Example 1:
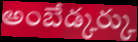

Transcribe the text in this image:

అంబేడ్కర్కు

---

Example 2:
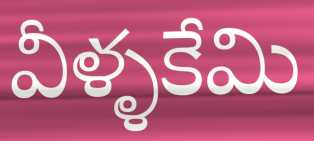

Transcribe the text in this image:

వీళ్ళకేమి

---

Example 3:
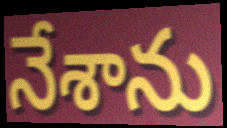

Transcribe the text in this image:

నేశాను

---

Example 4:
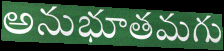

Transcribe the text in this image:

అనుభూతమగు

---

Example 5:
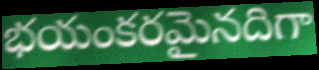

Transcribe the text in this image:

భయంకరమైనదిగా